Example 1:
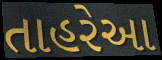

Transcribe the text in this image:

તાહરેઆ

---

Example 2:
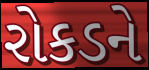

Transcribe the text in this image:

રોકડને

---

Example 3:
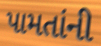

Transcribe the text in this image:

પામતાંની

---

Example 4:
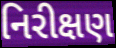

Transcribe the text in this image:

નિરીક્ષણ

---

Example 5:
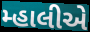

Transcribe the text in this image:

મ્હાલીએ